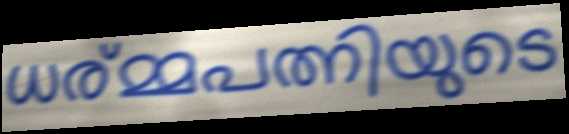
ധര്മ്മപത്നിയുടെ